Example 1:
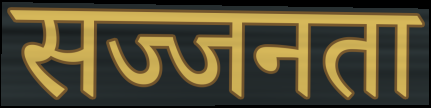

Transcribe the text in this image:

सज्जनता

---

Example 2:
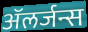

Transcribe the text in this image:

ॲलर्जन्स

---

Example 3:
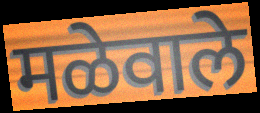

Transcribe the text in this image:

मळेवाले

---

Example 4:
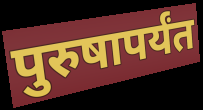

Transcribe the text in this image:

पुरुषापर्यंत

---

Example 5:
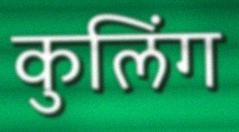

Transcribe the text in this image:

कुलिंग